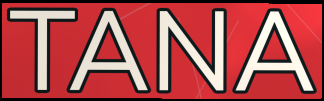
TANA